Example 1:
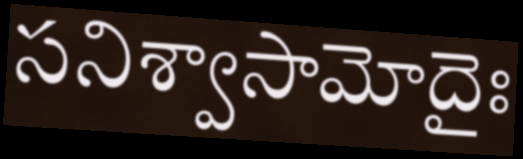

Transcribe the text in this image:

సనిశ్వాసామోదైః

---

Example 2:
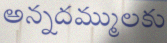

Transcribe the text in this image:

అన్నదమ్ములకు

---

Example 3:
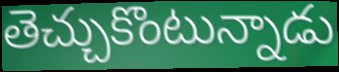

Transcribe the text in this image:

తెచ్చుకొంటున్నాడు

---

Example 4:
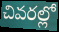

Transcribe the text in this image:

చివరల్లో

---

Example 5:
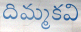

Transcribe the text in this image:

దిమ్మకవి